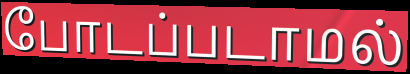
போடப்படாமல்